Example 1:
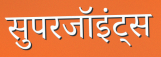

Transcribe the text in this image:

सुपरजॉइंट्स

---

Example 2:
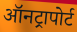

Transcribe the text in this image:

ऑनट्रापोर्ट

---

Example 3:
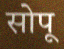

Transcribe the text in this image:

सोपू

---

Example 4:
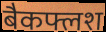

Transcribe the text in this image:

बैकफ्लश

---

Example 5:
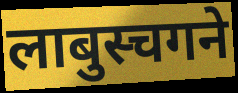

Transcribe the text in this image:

लाबुस्चगने